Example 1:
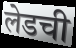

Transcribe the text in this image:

लेडची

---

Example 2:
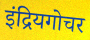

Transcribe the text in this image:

इंद्रियगोचर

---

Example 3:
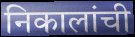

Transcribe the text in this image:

निकालांची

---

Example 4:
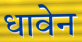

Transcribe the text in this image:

धावेन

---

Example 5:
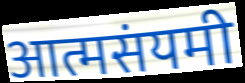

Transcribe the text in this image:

आत्मसंयमी